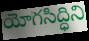
యోగసిద్ధిని